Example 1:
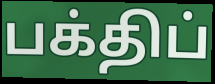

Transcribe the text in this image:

பக்திப்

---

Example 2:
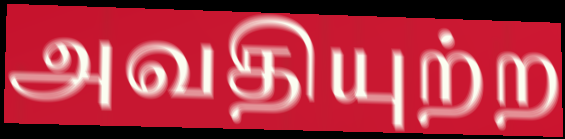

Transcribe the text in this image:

அவதியுற்ற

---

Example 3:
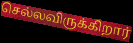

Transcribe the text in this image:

செல்லவிருக்கிறார்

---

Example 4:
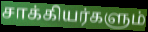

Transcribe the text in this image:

சாக்கியர்களும்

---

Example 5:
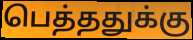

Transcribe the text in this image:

பெத்ததுக்கு